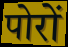
पोरों